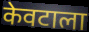
केवटाला